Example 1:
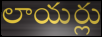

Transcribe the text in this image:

లాయర్లు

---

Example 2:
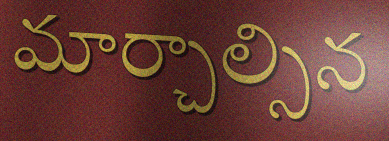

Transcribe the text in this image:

మార్చాల్సిన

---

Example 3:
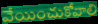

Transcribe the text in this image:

వేయించుకోవాలి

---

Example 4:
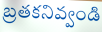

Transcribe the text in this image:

బ్రతకనివ్వండి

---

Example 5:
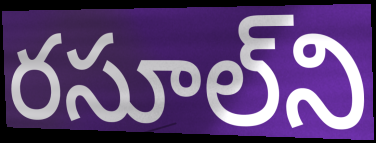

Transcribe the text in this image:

రసూల్‌ని